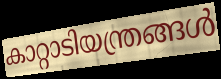
കാറ്റാടിയന്ത്രങ്ങൾ